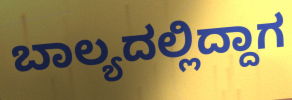
ಬಾಲ್ಯದಲ್ಲಿದ್ದಾಗ